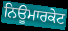
ਨਿਊਮਾਰਕੇਟ